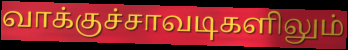
வாக்குச்சாவடிகளிலும்